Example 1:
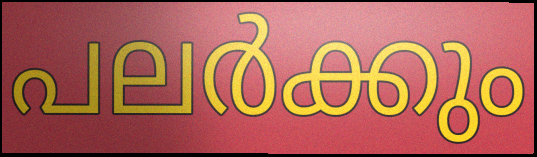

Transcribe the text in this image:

പലർക്കും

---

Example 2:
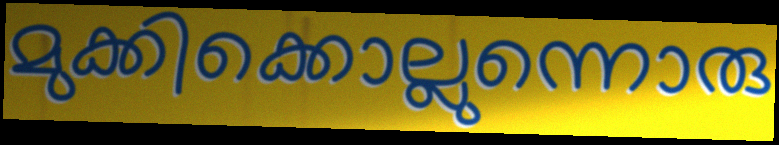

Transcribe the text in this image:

മുക്കിക്കൊല്ലുന്നൊരു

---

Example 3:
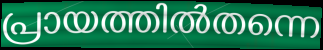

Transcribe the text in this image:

പ്രായത്തിൽതന്നെ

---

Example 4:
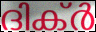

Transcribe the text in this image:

ദിക്ർ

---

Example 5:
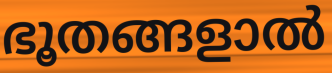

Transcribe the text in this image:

ഭൂതങ്ങളാൽ